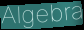
Algebra